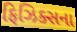
ફિઝિક્સના